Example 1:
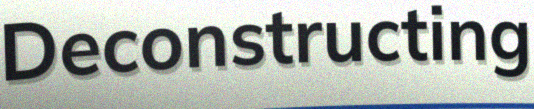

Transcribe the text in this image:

Deconstructing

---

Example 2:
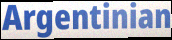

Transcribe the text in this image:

Argentinian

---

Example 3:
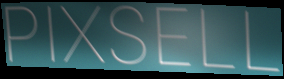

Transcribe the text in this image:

PIXSELL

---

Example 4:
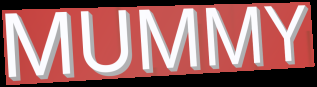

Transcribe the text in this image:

MUMMY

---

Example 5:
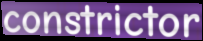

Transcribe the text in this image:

constrictor